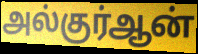
அல்குர்ஆன்